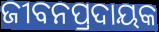
ଜୀବନପ୍ରଦାୟକ